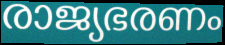
രാജ്യഭരണം